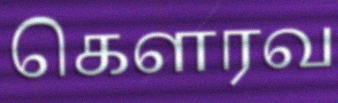
கெளரவ